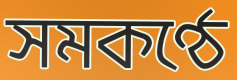
সমকণ্ঠে